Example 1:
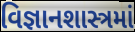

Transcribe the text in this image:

વિજ્ઞાનશાસ્ત્રમાં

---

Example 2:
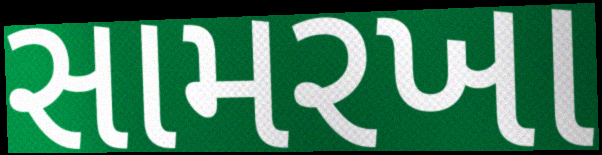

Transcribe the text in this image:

સામરખા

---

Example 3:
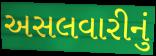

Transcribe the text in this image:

અસલવારીનું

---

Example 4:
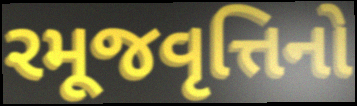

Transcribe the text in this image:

રમૂજવૃત્તિનો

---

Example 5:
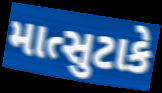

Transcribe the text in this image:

માત્સુટાકે